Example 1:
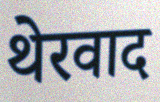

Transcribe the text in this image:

थेरवाद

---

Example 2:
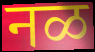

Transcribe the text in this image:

नळ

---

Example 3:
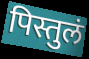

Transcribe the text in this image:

पिस्तुलं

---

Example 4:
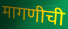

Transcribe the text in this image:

मागणीची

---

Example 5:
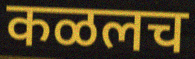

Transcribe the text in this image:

कळलच